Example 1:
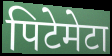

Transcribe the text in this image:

पिटेमेटा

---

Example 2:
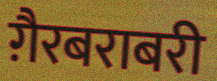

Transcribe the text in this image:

ग़ैरबराबरी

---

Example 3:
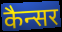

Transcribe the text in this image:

कैन्सर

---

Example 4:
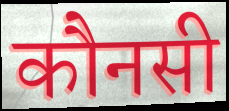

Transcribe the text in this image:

कौनसी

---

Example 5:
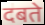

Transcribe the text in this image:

दबते